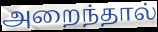
அறைந்தால்